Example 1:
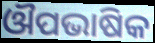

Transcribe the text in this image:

ଔପଭାଷିକ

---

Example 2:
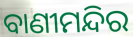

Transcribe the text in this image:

ବାଣୀମନ୍ଦିର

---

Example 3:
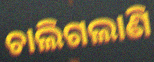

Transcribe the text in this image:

ଚାଲିଗଲାଣି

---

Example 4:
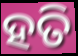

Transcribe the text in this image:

ହତି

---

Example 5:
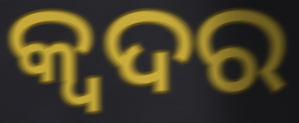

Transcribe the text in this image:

କ୍ୱଦର